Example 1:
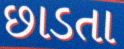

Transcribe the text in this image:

છાડતા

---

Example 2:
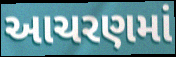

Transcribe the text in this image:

આચરણમાં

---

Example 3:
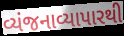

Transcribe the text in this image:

વ્યંજનાવ્યાપારથી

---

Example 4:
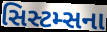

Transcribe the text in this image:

સિસ્ટમ્સના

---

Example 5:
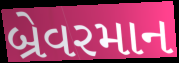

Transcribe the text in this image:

બ્રેવરમાન